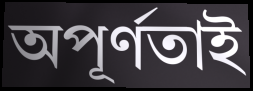
অপূর্ণতাই